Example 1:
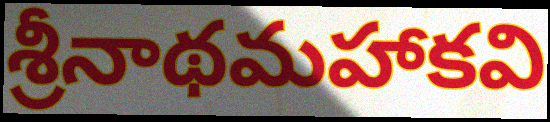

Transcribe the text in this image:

శ్రీనాథమహాకవి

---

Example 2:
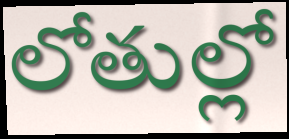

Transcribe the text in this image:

లోతుల్లో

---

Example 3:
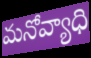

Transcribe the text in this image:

మనోవ్యాధి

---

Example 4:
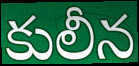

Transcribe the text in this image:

కులీన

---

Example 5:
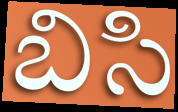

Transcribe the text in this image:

బిసి